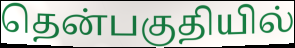
தென்பகுதியில்